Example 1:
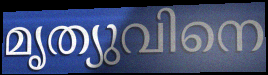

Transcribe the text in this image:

മൃത്യുവിനെ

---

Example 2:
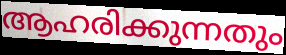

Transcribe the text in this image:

ആഹരിക്കുന്നതും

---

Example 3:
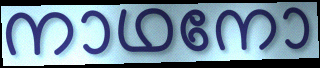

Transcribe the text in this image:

നാഥനോ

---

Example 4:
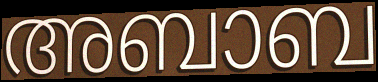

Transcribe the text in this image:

അബാബ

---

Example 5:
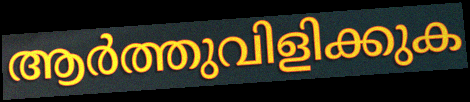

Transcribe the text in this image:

ആർത്തുവിളിക്കുക